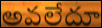
అవలేదూ